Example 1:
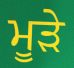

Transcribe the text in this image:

ਮੂੜੇ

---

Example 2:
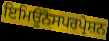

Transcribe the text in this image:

ਇਮਿਊਨੋਸਪਰਪ੍ਰੇਸ਼ਨ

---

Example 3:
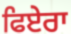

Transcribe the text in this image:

ਫਿਏਰਾ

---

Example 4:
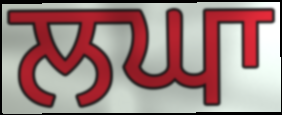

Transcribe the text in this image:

ਲਘਾ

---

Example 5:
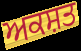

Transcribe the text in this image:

ਅਕਸ਼ਤ